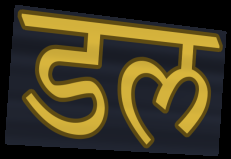
डल